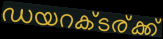
ഡയറക്ടര്ക്ക്